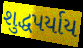
શુદ્ધપર્યાય